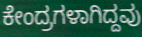
ಕೇಂದ್ರಗಳಾಗಿದ್ದವು